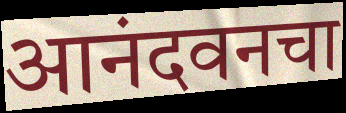
आनंदवनचा